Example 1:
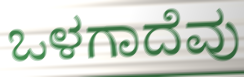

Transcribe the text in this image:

ಒಳಗಾದೆವು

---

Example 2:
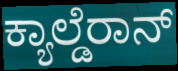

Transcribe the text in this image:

ಕ್ಯಾಲ್ಡೆರಾನ್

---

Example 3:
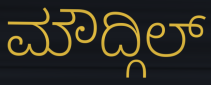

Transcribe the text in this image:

ಮೌದ್ಗಿಲ್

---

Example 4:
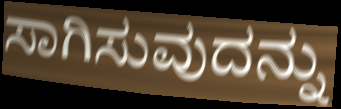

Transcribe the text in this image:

ಸಾಗಿಸುವುದನ್ನು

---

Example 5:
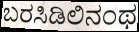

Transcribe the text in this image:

ಬರಸಿಡಿಲಿನಂಥ